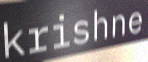
krishne